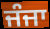
ਜੰਜਾ